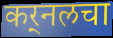
कर्नलचा